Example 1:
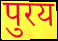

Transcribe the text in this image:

पुरय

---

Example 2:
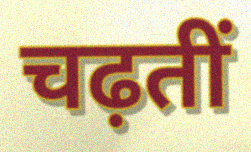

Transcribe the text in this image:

चढ़तीं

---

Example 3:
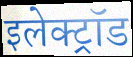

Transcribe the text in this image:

इलेक्ट्रॉड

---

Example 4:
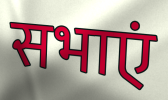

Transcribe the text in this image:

सभाएं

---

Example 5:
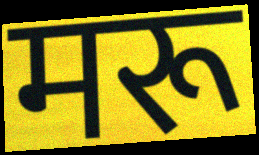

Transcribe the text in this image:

मरू